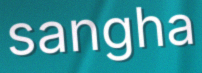
sangha